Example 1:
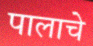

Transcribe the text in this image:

पालाचे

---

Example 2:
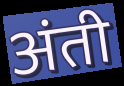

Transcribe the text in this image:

अंती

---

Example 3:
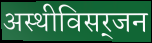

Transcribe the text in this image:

अस्थीविसर्जन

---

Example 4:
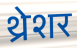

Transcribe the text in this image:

थ्रेशर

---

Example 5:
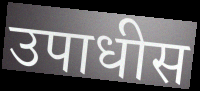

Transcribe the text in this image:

उपाधीस